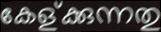
കേള്ക്കുന്നതു